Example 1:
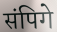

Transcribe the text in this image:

संपिगे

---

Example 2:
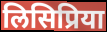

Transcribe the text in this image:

लिसिप्रिया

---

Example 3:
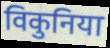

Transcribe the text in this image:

विकुनिया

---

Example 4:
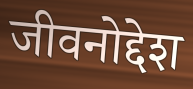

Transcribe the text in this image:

जीवनोद्देश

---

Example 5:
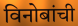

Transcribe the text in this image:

विनोबांची